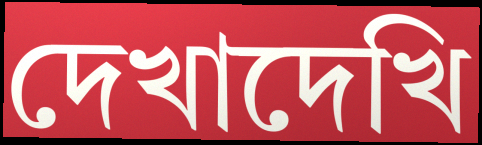
দেখাদেখি